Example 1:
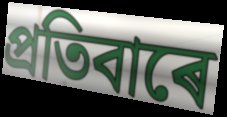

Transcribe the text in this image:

প্ৰতিবাৰে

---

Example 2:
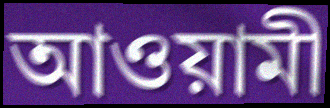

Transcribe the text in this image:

আওয়ামী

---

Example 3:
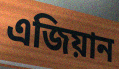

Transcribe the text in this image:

এজিয়ান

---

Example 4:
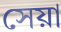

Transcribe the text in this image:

সেয়া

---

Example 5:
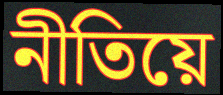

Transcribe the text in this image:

নীতিয়ে